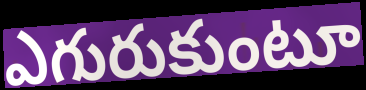
ఎగురుకుంటూ